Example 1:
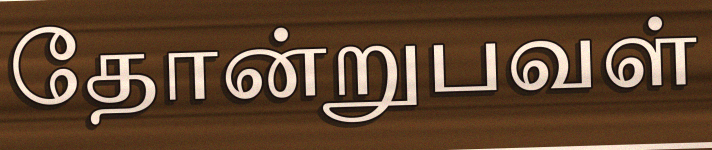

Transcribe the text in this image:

தோன்றுபவள்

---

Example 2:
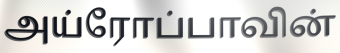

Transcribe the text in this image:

அய்ரோப்பாவின்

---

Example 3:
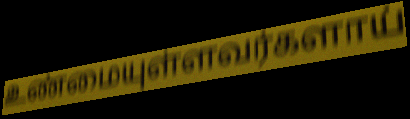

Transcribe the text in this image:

உண்மையுள்ளவர்களாய்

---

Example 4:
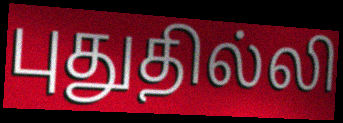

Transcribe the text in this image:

புதுதில்லி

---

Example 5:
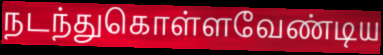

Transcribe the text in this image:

நடந்துகொள்ளவேண்டிய